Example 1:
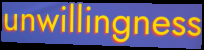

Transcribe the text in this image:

unwillingness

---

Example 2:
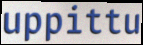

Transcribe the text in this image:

uppittu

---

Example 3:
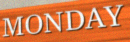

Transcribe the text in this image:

MONDAY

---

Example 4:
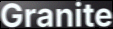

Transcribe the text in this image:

Granite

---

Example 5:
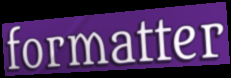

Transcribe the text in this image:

formatter